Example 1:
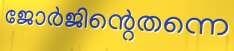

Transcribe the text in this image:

ജോർജിന്റെതന്നെ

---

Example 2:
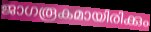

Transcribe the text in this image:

ജാഗരൂകമായിരിക്കും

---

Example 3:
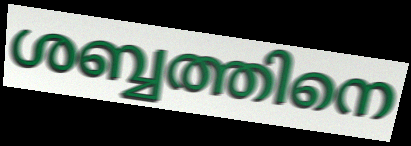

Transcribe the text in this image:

ശബ്ബത്തിനെ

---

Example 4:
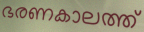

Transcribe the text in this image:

ഭരണകാലത്ത്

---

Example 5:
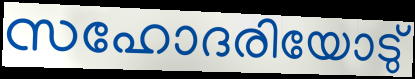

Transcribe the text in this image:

സഹോദരിയോടു്